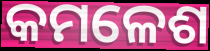
କମଳେଶ